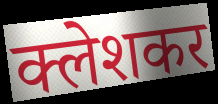
क्लेशकर